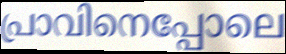
പ്രാവിനെപ്പോലെ